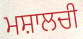
ਮਸ਼ਾਲਚੀ